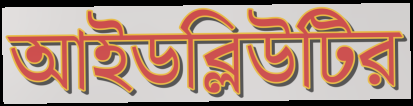
আইডব্লিউটির